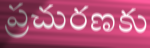
ప్రచురణకు